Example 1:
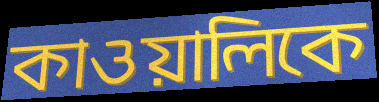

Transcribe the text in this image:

কাওয়ালিকে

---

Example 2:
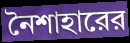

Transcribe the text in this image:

নৈশাহারের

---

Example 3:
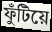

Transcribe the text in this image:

ফুঁটিয়ে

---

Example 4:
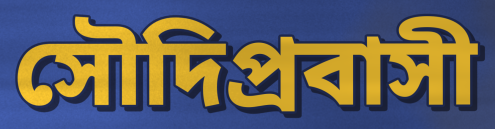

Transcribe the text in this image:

সৌদিপ্রবাসী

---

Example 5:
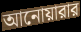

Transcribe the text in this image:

আনোয়ারার